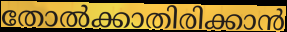
തോൽക്കാതിരിക്കാൻ